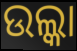
ଉଲ୍କା